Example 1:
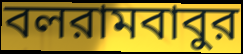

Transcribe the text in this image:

বলরামবাবুর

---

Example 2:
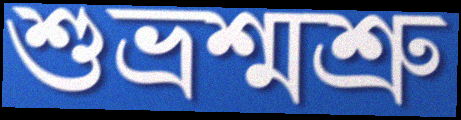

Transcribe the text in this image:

শুভ্রশ্মশ্রু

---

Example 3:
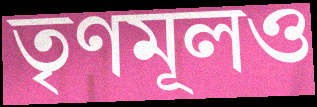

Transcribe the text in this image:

তৃণমূলও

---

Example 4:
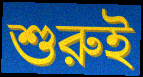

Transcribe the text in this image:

শুরুই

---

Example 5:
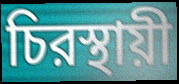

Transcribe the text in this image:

চিরস্থায়ী